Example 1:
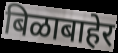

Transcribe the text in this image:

बिळाबाहेर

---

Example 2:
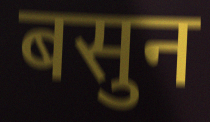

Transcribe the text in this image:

बसुन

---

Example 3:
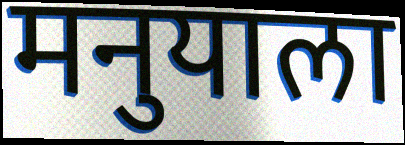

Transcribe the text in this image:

मनुयाला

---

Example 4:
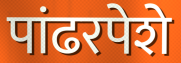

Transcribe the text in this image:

पांढरपेशे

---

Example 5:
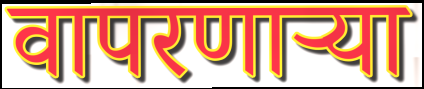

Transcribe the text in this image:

वापरणार्‍या